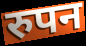
रुपन